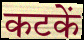
कटकें